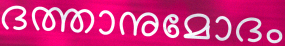
ദത്താനുമോദം